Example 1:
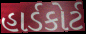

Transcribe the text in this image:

હાર્ડકોર્ટ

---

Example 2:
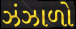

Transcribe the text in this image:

ઝંઝાળો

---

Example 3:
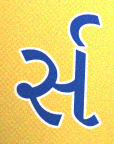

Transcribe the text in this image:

ર્સ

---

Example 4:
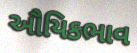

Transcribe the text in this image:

ઔયિકભાવ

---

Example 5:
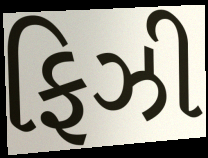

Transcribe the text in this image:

ફિઝી